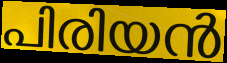
പിരിയൻ